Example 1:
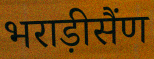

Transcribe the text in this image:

भराड़ीसैंण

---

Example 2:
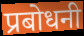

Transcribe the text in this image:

प्रबोधनी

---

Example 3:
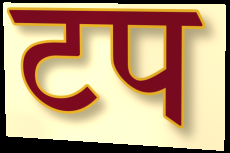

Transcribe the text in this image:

टप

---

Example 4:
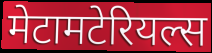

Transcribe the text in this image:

मेटामटेरियल्स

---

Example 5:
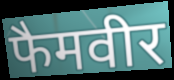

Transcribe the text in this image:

फैमवीर